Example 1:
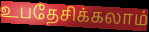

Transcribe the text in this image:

உபதேசிக்கலாம்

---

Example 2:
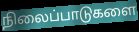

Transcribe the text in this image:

நிலைப்பாடுகளை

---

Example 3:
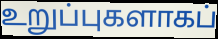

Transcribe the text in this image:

உறுப்புகளாகப்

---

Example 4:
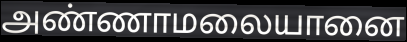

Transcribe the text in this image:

அண்ணாமலையானை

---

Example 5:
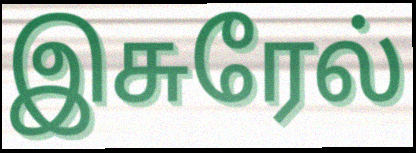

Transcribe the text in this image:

இசுரேல்